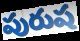
పురుష